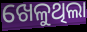
ଖେଳୁଥିଲା